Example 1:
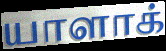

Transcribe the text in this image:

யாளாக்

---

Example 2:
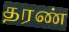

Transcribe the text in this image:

தரண்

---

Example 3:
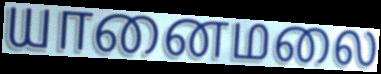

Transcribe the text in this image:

யானைமலை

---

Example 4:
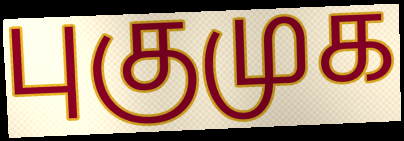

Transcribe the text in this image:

புகுமுக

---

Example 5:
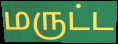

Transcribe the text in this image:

மருட்ட